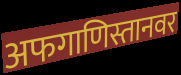
अफगाणिस्तानवर